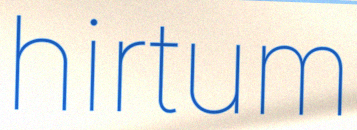
hirtum